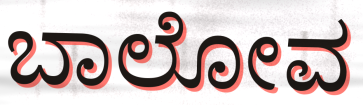
ಬಾಲೋವ